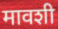
मावशी